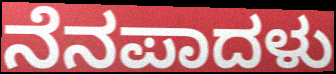
ನೆನಪಾದಳು